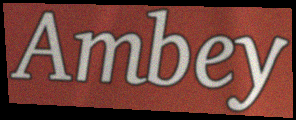
Ambey